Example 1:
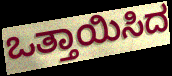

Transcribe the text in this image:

ಒತ್ತಾಯಿಸಿದ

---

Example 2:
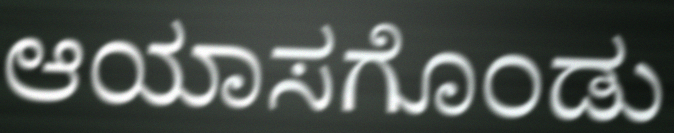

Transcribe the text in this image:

ಆಯಾಸಗೊಂಡು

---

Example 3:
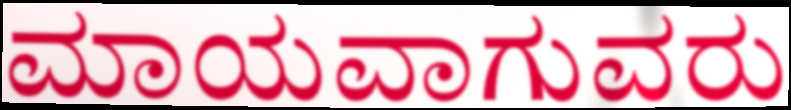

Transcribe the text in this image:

ಮಾಯವಾಗುವರು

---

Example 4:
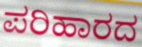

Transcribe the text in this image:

ಪರಿಹಾರದ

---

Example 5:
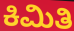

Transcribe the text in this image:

ಕಿಮಿತಿ